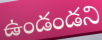
ఉండండని